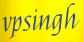
vpsingh